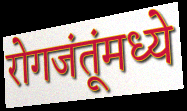
रोगजंतूंमध्ये